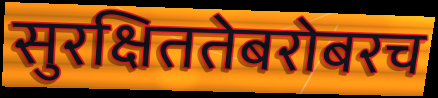
सुरक्षिततेबरोबरच